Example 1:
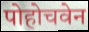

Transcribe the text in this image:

पोहोचवेन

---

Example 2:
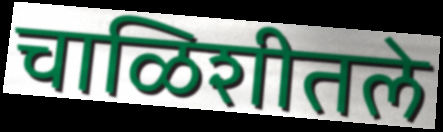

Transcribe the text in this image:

चाळिशीतले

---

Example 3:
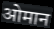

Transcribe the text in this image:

ओमान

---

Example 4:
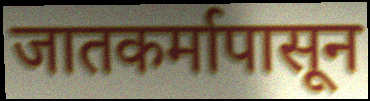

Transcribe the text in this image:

जातकर्मापासून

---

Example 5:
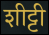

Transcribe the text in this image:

शीट्टी